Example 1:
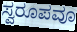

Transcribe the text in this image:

ಸ್ವರೂಪವೂ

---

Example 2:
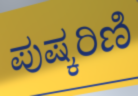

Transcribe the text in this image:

ಪುಷ್ಕರಿಣಿ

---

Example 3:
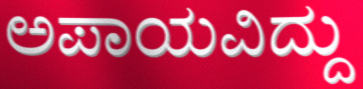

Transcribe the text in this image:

ಅಪಾಯವಿದ್ದು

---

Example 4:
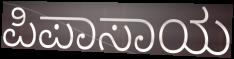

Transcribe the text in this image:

ಪಿಪಾಸಾಯ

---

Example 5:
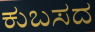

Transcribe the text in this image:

ಕುಬಸದ